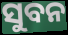
ସୁବନ